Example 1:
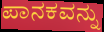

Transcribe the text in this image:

ಪಾನಕವನ್ನು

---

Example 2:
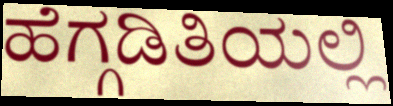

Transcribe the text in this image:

ಹೆಗ್ಗಡಿತಿಯಲ್ಲಿ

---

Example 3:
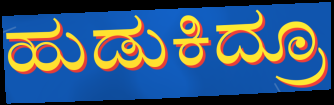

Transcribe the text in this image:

ಹುಡುಕಿದ್ರೂ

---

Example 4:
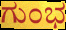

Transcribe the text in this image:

ಗುಂಭ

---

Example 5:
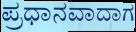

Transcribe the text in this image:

ಪ್ರಧಾನವಾದಾಗ